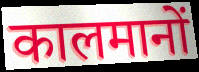
कालमानों